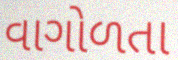
વાગોળતા